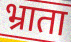
भ्राता